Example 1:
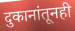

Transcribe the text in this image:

दुकानांतूनही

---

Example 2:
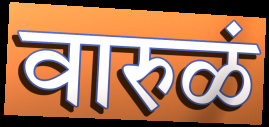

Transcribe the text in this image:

वारुळं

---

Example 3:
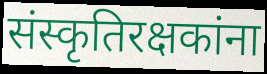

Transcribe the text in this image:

संस्कृतिरक्षकांना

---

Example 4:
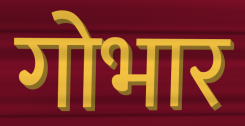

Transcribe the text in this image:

गोभार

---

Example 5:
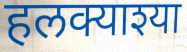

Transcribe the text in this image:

हलक्याश्या